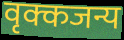
वृक्कजन्य